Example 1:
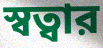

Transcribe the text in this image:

স্বত্বার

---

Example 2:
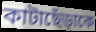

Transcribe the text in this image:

কাটাছেঁড়াকে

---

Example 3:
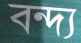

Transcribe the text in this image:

বন্দ্য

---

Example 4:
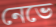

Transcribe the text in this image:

নেভে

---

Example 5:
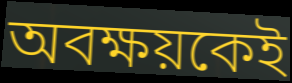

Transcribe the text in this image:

অবক্ষয়কেই